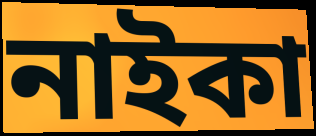
নাইকা